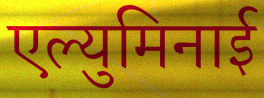
एल्युमिनाई